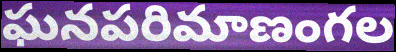
ఘనపరిమాణంగల